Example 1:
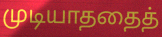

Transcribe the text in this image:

முடியாததைத்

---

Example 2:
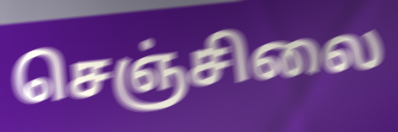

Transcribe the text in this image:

செஞ்சிலை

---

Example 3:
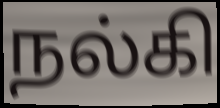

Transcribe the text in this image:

நல்கி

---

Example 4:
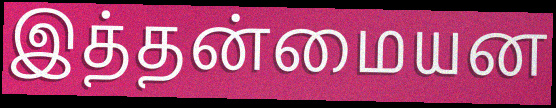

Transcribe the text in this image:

இத்தன்மையன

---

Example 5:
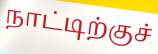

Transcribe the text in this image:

நாட்டிற்குச்